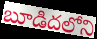
బూడిదలోని